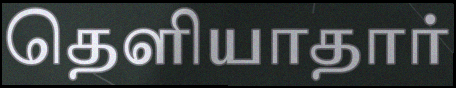
தெளியாதார்